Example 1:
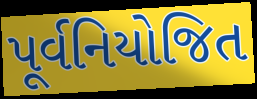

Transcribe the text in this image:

પૂર્વનિયોજિત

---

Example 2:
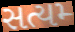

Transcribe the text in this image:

સત્યમ્‍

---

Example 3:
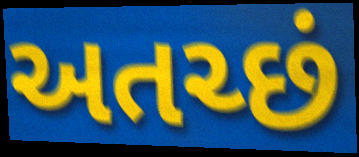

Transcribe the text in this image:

અતચ્છં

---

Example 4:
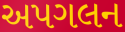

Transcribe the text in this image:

અપગલન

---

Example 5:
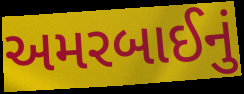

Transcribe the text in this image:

અમરબાઈનું